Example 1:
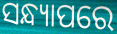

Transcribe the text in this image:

ସନ୍ଧ୍ୟାପରେ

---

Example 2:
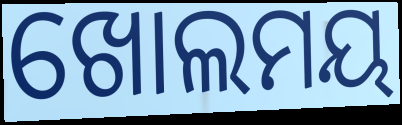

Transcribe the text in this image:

ଖୋଲମୟ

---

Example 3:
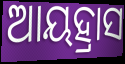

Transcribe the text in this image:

ଆୟହ୍ରାସ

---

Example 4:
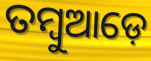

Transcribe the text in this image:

ତମ୍ବୁଆଡ଼େ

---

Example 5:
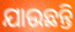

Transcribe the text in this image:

ଯାଉଛନ୍ତି